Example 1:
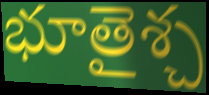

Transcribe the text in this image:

భూతైశ్చ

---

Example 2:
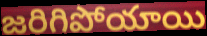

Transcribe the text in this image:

జరిగిపోయాయి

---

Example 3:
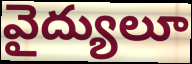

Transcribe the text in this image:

వైద్యులూ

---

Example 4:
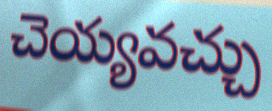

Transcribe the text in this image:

చెయ్యవచ్చు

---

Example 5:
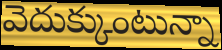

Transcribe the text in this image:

వెదుక్కుంటున్నా